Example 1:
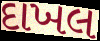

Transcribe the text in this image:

દાખલ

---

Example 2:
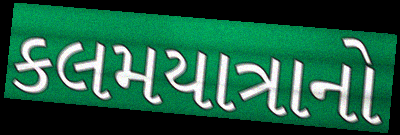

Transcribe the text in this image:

કલમયાત્રાનો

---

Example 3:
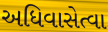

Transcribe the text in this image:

અધિવાસેત્વા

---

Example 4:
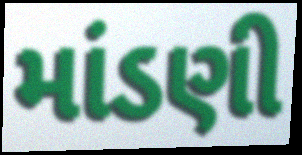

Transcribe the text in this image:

માંડણી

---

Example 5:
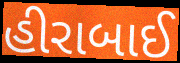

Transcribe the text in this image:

હીરાબાઈ